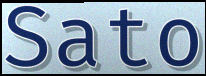
Sato